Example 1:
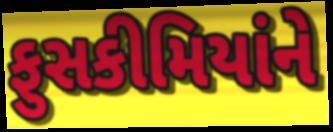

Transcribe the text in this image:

ફુસકીમિયાંને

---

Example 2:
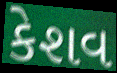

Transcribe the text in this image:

કેશવ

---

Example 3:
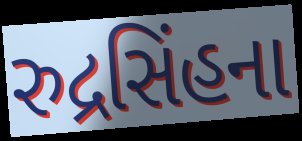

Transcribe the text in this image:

રુદ્રસિંહના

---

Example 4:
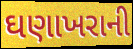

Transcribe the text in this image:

ઘણાખરાની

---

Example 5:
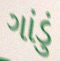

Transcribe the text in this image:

ગાંડું